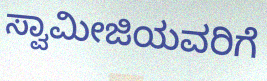
ಸ್ವಾಮೀಜಿಯವರಿಗೆ